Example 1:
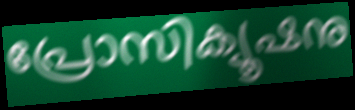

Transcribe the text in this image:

പ്രോസിക്യൂഷനു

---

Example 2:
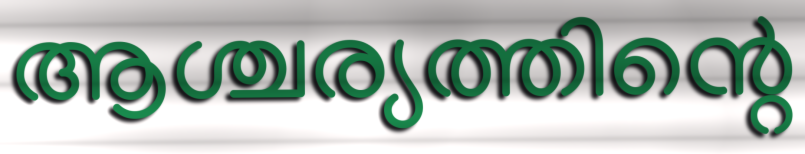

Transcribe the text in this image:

ആശ്ചര്യത്തിന്റെ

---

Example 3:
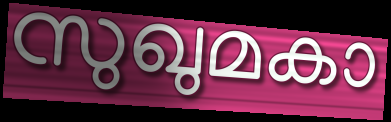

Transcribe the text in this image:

സുഖുമകാ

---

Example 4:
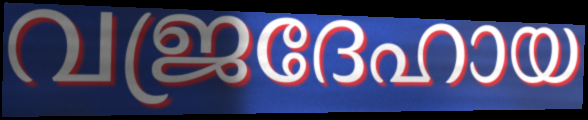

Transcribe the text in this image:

വജ്രദേഹായ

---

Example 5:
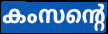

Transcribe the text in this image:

കംസന്റെ